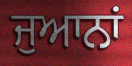
ਜੁਆਨਾਂ